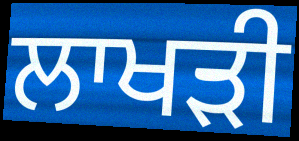
ਲਾਖੜੀ